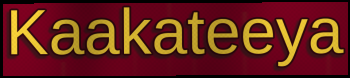
Kaakateeya